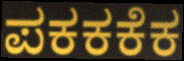
ಪಕಕಕೆಕ